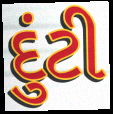
દુંટી